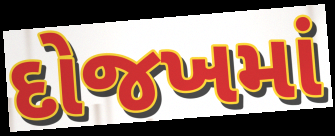
દોજખમાં